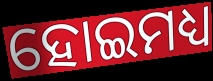
ହୋଇମଧ୍ୟ